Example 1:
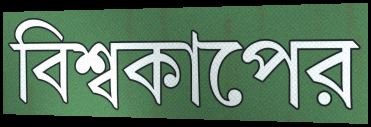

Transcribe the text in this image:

বিশ্বকাপের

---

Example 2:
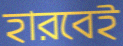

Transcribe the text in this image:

হারবেই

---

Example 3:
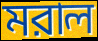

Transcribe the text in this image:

মরাল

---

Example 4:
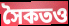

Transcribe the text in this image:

সৈকতও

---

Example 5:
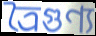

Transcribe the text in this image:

ত্রৈগুণ্য